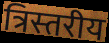
त्रिस्तरीय